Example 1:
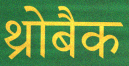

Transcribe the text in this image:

थ्रोबैक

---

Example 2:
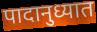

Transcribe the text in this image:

पादानुध्यात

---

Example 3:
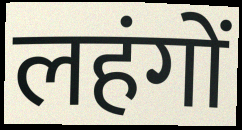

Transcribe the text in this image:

लहंगों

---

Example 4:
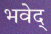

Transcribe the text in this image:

भवेद्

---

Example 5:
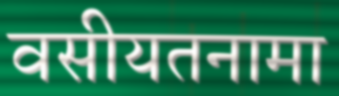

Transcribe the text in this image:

वसीयतनामा